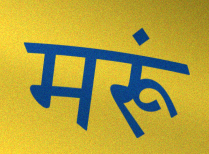
मरूं